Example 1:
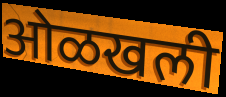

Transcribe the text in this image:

ओळखली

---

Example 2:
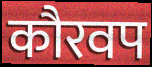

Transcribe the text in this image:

कौरवप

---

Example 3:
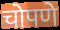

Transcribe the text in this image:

चोपणे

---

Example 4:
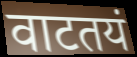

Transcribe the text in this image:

वाटतयं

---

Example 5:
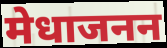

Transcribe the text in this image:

मेधाजनन